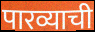
पारव्याची